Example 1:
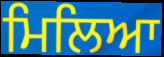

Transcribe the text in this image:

ਮਿਲਿਆ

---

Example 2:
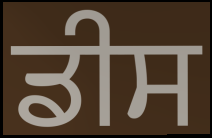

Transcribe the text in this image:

ਡੀਸ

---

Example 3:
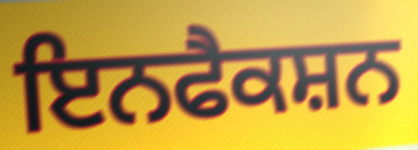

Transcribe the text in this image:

ਇਨਫੈਕਸ਼ਨ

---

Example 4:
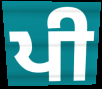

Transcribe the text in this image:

ਪੀ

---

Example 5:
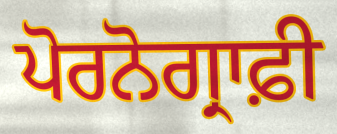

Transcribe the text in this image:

ਪੋਰਨੋਗ੍ਰਾਫ਼ੀ